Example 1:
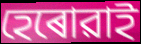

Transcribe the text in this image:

হেৰোৱাই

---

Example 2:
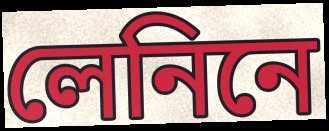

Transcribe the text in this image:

লেনিনে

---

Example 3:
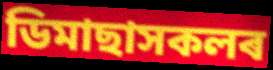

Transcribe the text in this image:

ডিমাছাসকলৰ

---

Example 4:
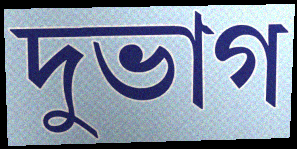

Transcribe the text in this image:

দুভাগ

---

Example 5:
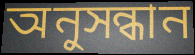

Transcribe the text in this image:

অনুসন্ধান